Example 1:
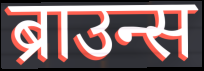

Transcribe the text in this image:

ब्राउन्स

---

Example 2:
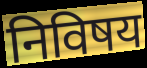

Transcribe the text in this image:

निविषय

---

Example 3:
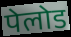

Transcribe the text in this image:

पेलोड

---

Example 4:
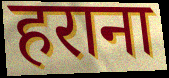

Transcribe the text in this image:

हराना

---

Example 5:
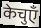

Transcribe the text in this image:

केचुएँ